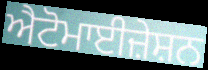
ਐਟੋਮਾਈਜ਼ੇਸ਼ਨ